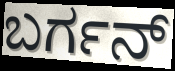
ಬರ್ಗನ್